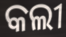
କଲୀ